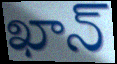
ఖాన్